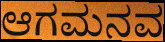
ಆಗಮನವ